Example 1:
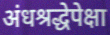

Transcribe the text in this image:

अंधश्रद्धेपेक्षा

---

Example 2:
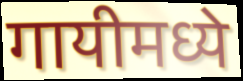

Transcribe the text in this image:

गायीमध्ये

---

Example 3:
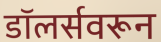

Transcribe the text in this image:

डॉलर्सवरून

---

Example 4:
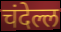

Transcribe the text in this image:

चंदेल्ल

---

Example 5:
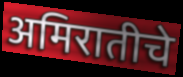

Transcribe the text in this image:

अमिरातीचे